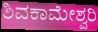
ಶಿವಕಾಮೇಶ್ವರಿ